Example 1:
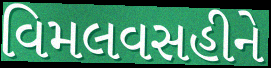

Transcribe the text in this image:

વિમલવસહીને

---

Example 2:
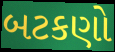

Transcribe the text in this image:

બટકણો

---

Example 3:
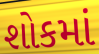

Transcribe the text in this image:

શોકમાં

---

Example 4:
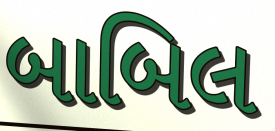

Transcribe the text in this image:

બાબિલ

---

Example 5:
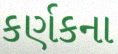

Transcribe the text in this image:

કર્ણકના